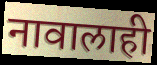
नावालाही